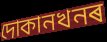
দোকানখনৰ